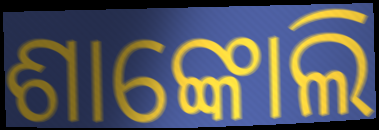
ଶାଙ୍କୋଲି